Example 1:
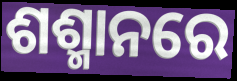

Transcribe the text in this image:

ଶଶ୍ମାନରେ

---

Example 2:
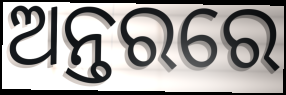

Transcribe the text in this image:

ଅନ୍ତରରେ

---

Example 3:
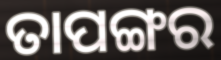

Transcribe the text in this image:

ତାପଙ୍ଗର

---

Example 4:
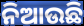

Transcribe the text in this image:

ନିଆଉଛି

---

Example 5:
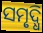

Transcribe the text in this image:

ସମୃଦ୍ଧି